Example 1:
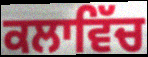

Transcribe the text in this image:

ਕਲਾਵਿੱਚ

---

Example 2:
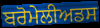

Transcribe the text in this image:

ਬਰੋਮੇਲੀਅਡਸ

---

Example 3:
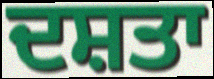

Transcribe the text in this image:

ਦਸ਼ਤਾ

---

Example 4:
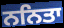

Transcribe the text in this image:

ਨਨਿਤਾ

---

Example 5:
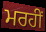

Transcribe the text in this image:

ਮਰਹੀਂ